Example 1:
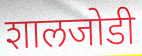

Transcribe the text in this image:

शालजोडी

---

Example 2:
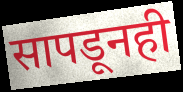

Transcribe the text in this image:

सापडूनही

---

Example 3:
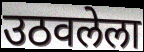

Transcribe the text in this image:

उठवलेला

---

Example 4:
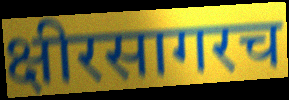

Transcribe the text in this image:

क्षीरसागरच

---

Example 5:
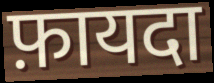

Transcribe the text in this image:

फ़ायदा